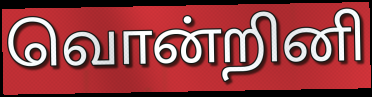
வொன்றினி